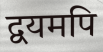
द्वयमपि